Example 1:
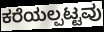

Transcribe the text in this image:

ಕರೆಯಲ್ಪಟ್ಟವು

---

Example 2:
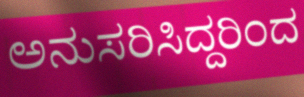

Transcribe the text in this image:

ಅನುಸರಿಸಿದ್ದರಿಂದ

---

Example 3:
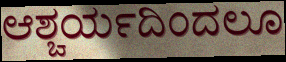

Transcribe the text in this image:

ಆಶ್ಚರ್ಯದಿಂದಲೂ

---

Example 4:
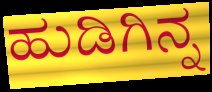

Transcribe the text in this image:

ಹುಡಿಗಿನ್ನ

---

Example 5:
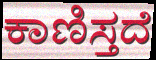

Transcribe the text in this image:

ಕಾಣಿಸ್ತದೆ